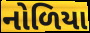
નોળિયા